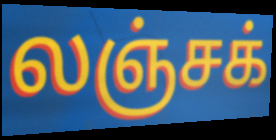
லஞ்சக்